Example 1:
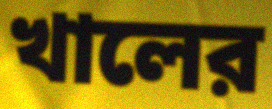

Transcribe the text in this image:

খালের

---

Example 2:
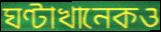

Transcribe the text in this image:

ঘণ্টাখানেকও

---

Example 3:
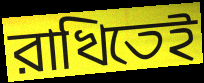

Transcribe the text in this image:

রাখিতেই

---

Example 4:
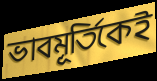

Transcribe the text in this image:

ভাবমূর্তিকেই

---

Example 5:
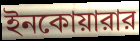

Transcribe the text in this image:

ইনকোয়ারার